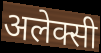
अलेक्सी